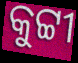
କୁଟ୍ଟୀ